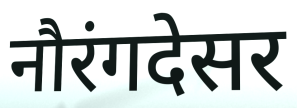
नौरंगदेसर